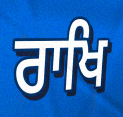
ਰਾਖਿ